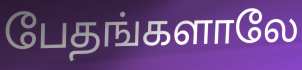
பேதங்களாலே